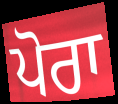
ਪੋਰਾ